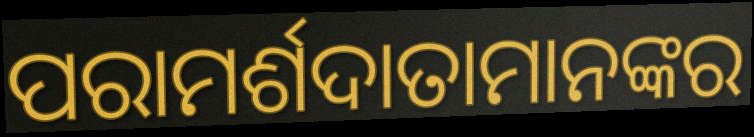
ପରାମର୍ଶଦାତାମାନଙ୍କର